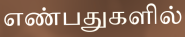
எண்பதுகளில்